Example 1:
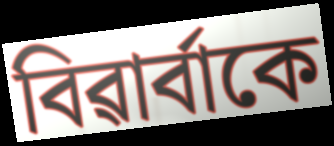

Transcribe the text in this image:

বিৱাৰ্বাকে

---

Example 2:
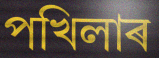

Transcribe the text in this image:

পখিলাৰ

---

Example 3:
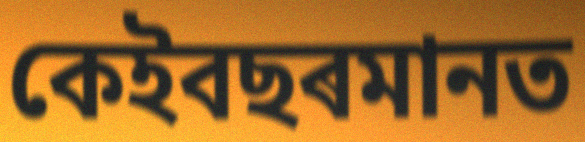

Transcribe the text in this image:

কেইবছৰমানত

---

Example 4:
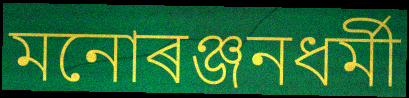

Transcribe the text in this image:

মনোৰঞ্জনধৰ্মী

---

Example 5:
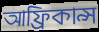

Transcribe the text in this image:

আফ্ৰিকান্স